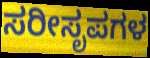
ಸರೀಸೃಪಗಳ